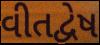
વીતદ્વેષ